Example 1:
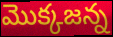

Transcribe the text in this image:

మొక్కజన్న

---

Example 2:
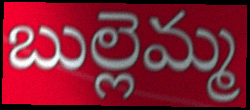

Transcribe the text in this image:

బుల్లెమ్మ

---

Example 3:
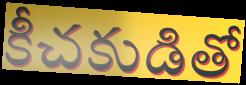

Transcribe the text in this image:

కీచకుడితో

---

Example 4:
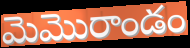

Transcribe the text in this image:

మెమొరాండం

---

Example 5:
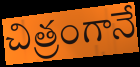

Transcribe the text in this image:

చిత్రంగానే